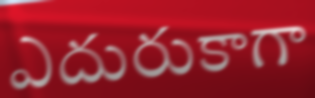
ఎదురుకాగా